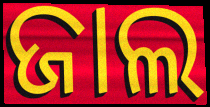
ଜାଲ